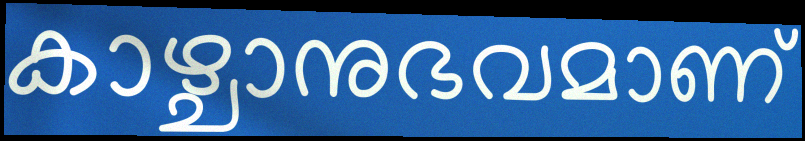
കാഴ്ചാനുഭവമാണ്